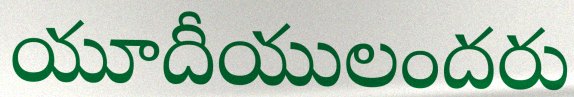
యూదీయులందరు